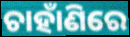
ଚାହାଁଣିରେ